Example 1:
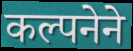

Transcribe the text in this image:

कल्पनेने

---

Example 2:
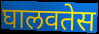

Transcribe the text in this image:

घालवतेस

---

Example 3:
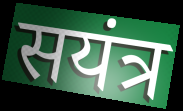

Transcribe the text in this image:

सयंत्र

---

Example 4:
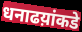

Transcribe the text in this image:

धनाढय़ांकडे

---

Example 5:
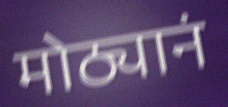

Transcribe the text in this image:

मोठ्यानं